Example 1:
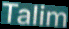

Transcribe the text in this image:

Talim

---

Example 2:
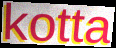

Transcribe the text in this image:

kotta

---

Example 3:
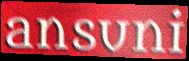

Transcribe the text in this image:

ansuni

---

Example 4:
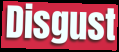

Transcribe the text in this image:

Disgust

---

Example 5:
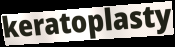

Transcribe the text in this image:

keratoplasty